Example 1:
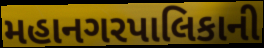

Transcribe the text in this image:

મહાનગરપાલિકાની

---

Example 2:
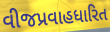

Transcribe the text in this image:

વીજપ્રવાહધારિત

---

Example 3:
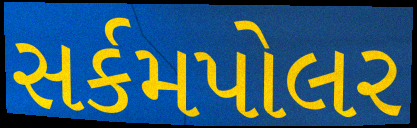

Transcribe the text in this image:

સર્કમપોલર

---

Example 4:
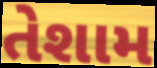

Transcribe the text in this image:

તેશામ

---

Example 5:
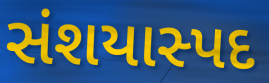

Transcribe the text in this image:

સંશયાસ્પદ